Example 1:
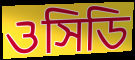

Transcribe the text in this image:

ওসিডি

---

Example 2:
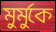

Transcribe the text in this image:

মুর্মুকে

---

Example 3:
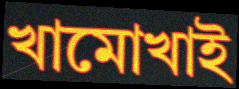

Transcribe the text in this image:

খামোখাই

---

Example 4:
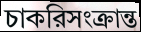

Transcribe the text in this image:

চাকরিসংক্রান্ত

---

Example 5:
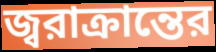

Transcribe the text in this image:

জ্বরাক্রান্তের